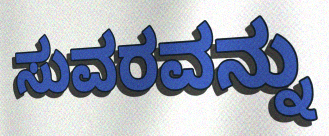
ಸುವರವನ್ನು